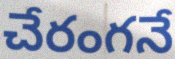
చేరంగనే